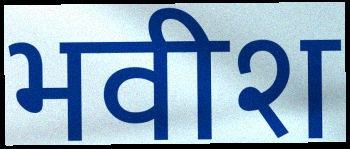
भवीश